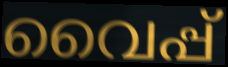
വൈപ്പ്